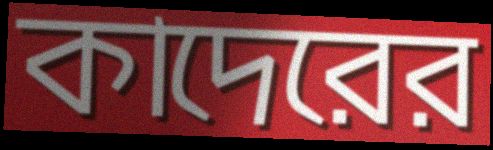
কাদেরের